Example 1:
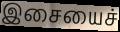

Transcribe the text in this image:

இசையைச்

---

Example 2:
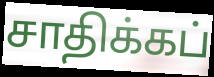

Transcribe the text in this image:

சாதிக்கப்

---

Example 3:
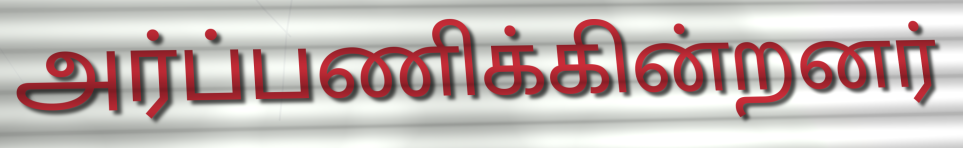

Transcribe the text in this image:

அர்ப்பணிக்கின்றனர்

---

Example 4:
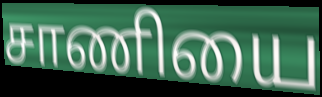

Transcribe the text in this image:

சாணியை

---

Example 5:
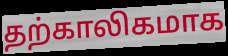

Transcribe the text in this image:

தற்காலிகமாக